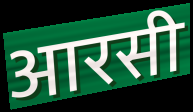
आरसी